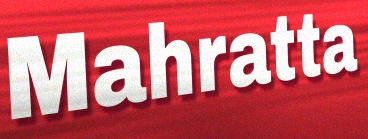
Mahratta